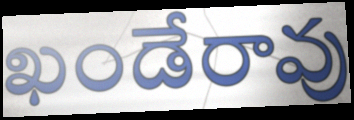
ఖండేరావు